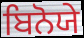
ਬਿਨੋਯੇ